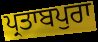
ਪ੍ਰਤਾਬਪੁਰਾ